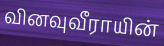
வினவுவீராயின்